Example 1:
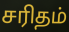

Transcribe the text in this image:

சரிதம்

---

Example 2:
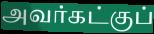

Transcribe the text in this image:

அவர்கட்குப்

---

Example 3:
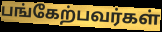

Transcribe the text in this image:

பங்கேற்பவர்கள்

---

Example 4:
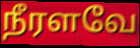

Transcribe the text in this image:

நீரளவே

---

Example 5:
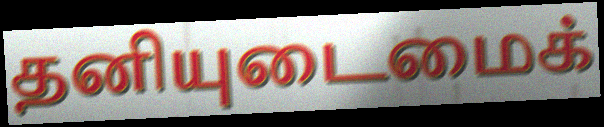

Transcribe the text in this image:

தனியுடைமைக்